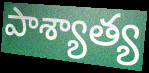
పాశ్యాత్య